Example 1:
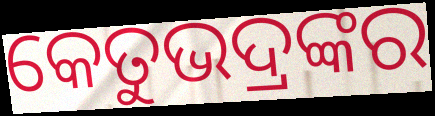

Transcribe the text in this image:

କେତୁଭଦ୍ରଙ୍କର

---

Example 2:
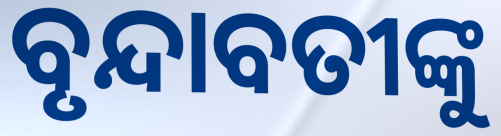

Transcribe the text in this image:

ବୃନ୍ଦାବତୀଙ୍କୁ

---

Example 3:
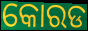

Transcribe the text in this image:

କୋରଡ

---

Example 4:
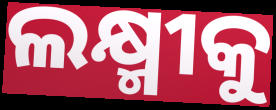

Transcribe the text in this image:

ଲକ୍ଷ୍ମୀକୁ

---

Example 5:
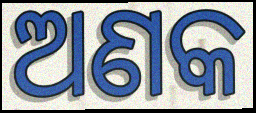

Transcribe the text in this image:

ଅଣକ